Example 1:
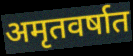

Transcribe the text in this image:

अमृतवर्षात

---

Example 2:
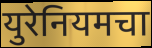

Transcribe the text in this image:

युरेनियमचा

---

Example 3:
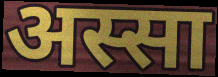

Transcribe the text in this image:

अस्सा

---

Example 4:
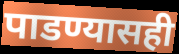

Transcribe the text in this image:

पाडण्यासही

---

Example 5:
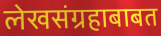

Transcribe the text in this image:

लेखसंग्रहाबाबत